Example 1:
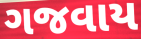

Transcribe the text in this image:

ગજવાય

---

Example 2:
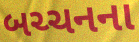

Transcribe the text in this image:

બચ્ચનના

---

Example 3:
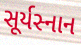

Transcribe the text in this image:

સૂર્યસ્નાન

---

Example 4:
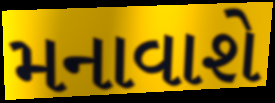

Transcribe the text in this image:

મનાવાશે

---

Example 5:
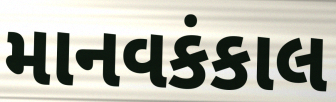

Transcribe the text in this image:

માનવકંકાલ